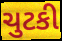
ચુટકી